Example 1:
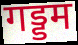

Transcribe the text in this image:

गड्डम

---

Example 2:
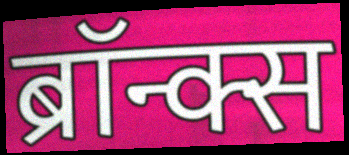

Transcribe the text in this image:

ब्रॉन्क्स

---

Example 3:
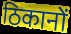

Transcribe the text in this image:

ठिकानों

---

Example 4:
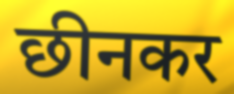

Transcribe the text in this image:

छीनकर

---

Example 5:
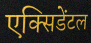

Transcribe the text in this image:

एक्सिडेंटल